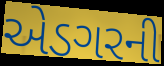
એડગરની